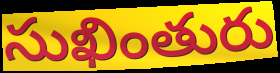
సుఖింతురు